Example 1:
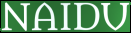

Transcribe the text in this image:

NAIDU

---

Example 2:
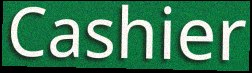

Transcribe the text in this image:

Cashier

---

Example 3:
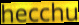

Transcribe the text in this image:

hecchu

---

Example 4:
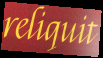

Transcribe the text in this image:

reliquit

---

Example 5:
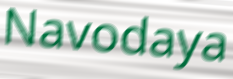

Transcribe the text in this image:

Navodaya